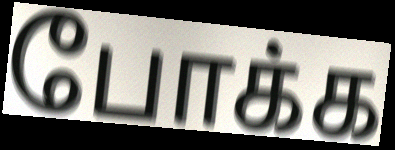
போக்க